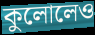
কুলোলেও